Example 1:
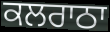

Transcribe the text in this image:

ਕਲਰਾਠਾ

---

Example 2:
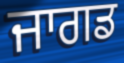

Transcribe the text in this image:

ਜਾਗਡ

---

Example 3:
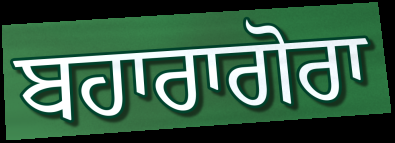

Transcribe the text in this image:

ਬਹਾਰਾਗੋਰਾ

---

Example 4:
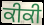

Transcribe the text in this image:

ਕੀਕੀ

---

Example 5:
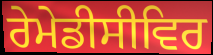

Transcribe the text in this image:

ਰੇਮੇਡੀਸੀਵਿਰ